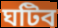
ঘটিব